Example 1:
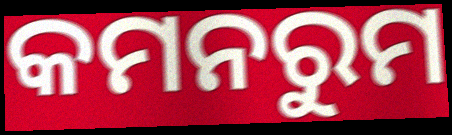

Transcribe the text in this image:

କମନରୁମ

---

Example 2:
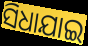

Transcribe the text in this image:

ସିଧାଯାଇ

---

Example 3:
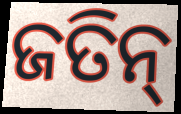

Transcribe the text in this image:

ଜତିନ୍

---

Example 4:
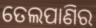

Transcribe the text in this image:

ତେଲପାଣିର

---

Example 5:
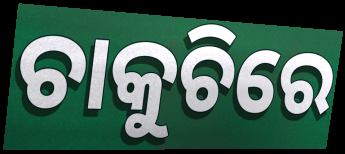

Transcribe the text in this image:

ଚାକୁଚିରେ